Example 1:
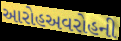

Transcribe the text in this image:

આરોહઅવરોહની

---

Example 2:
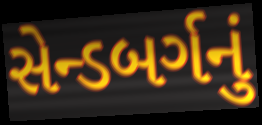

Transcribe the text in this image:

સેન્ડબર્ગનું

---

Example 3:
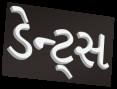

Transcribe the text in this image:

ડેન્ટ્સ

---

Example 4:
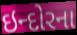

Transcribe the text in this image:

ઇન્દોરના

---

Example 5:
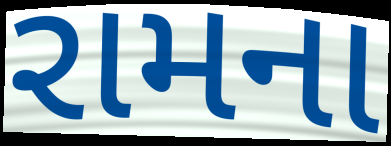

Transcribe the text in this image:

રામના